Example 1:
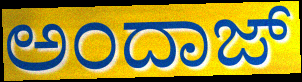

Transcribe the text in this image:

ಅಂದಾಜ್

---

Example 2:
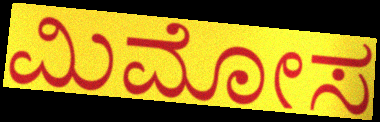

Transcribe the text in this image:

ಮಿಮೋಸ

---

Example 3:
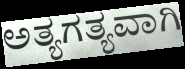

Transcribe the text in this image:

ಅತ್ಯಗತ್ಯವಾಗಿ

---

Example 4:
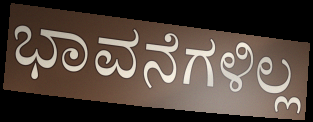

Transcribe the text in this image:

ಭಾವನೆಗಳಿಲ್ಲ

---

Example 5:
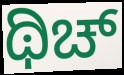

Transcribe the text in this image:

ಥಿಚ್